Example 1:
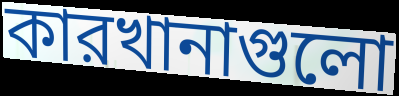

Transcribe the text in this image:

কারখানাগুলো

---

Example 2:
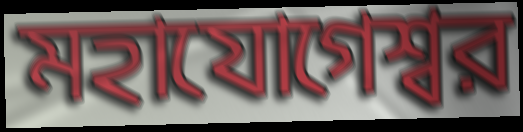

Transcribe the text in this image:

মহাযোগেশ্বর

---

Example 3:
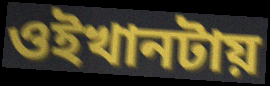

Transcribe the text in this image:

ওইখানটায়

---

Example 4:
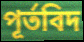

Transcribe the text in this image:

পূর্তবিদ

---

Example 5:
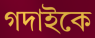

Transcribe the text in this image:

গদাইকে